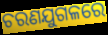
ଚରଣଯୁଗଳରେ